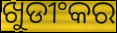
ଖୁଡୀଂକର